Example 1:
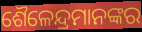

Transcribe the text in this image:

ଶୈଳେନ୍ଦ୍ରମାନଙ୍କର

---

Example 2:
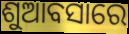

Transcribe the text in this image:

ଶୁଆବସାରେ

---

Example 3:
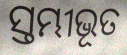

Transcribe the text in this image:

ସ୍ତମ୍ଭୀଭୂତ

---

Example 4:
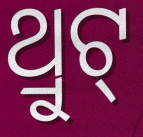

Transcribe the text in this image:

ଥ୍ରୁଟ୍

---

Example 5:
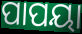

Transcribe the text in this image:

ପାପୟା